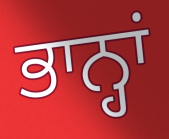
ਭਾਨ੍ਹਾਂ